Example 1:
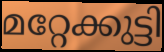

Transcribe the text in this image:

മറ്റേക്കുട്ടി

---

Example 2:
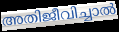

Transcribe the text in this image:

അതിജീവിച്ചാൽ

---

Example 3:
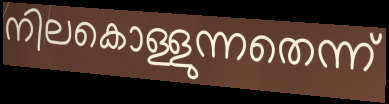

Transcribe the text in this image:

നിലകൊള്ളുന്നതെന്ന്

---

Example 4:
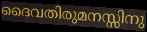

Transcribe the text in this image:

ദൈവതിരുമനസ്സിനു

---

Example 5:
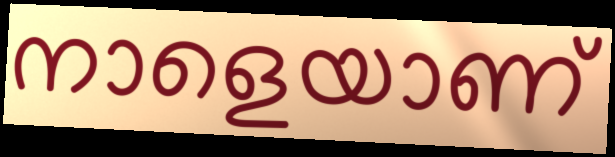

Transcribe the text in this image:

നാളെയാണ്